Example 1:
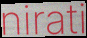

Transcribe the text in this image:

nirati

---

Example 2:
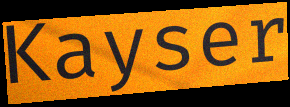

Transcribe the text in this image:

Kayser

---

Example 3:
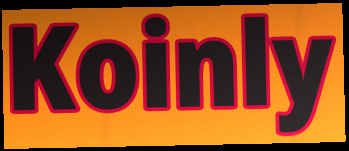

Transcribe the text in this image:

Koinly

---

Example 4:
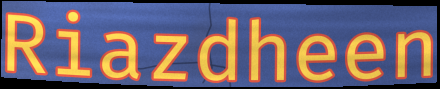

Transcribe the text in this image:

Riazdheen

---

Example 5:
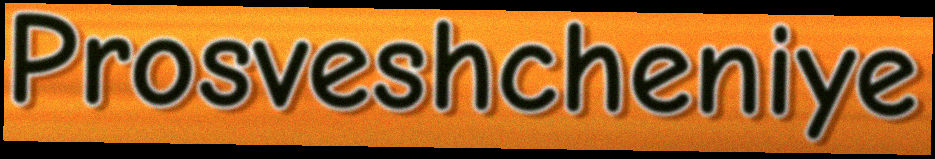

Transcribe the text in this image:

Prosveshcheniye